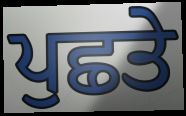
ਪੁਛਤੇ